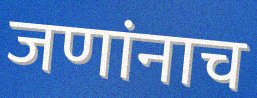
जणांनाच